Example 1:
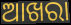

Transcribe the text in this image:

ଆଖରା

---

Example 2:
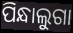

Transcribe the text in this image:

ପିନ୍ଧାଲୁଗା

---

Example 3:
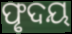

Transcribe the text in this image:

ଫୃଦୟ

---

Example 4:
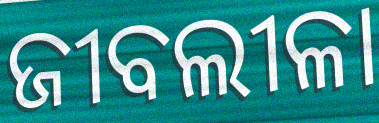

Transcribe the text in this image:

ଜୀବଲୀଳା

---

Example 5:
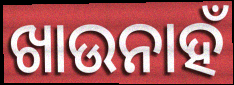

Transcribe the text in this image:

ଖାଉନାହଁ